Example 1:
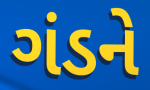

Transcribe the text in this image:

ગંડને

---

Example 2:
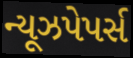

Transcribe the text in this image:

ન્યૂઝપેપર્સ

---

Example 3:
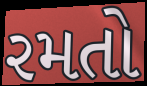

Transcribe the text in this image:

રમતો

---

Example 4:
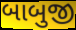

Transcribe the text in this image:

બાબુજી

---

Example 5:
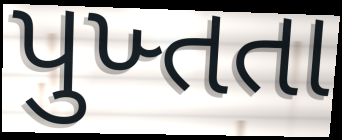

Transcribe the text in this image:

પુખ્તતા